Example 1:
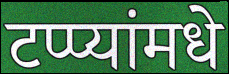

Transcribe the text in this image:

टप्प्यांमधे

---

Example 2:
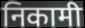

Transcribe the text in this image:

निकामी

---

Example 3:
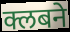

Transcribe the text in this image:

क्लबने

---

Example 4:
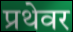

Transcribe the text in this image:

प्रथेवर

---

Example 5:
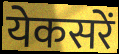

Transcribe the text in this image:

येकसरें